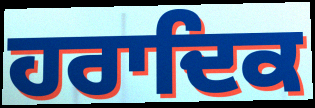
ਹਰਾਦਿਕ